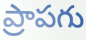
ప్రాపగు